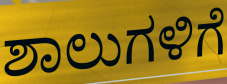
ಶಾಲುಗಳಿಗೆ